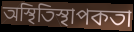
অস্থিতিস্থাপকতা